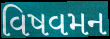
વિષવમન